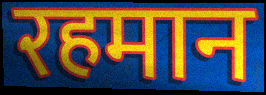
रहमान